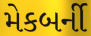
મેકબર્ની